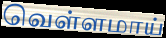
வெள்ளமாய்